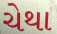
ચેથા